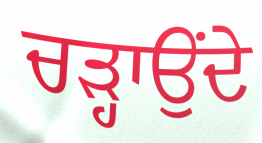
ਚੜ੍ਹਾਉਂਦੇ